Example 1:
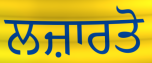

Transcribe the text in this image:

ਲਜ਼ਾਰਤੋ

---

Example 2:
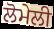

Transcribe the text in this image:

ਲੋਮੇਲੀ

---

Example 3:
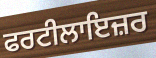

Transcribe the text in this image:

ਫਰਟੀਲਾਇਜ਼ਰ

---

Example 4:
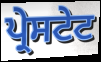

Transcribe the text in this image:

ਪ੍ਰੇਸਟੇਟ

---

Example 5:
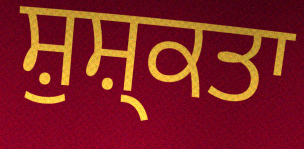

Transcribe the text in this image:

ਸ਼ੁਸ਼੍ਕਤਾ